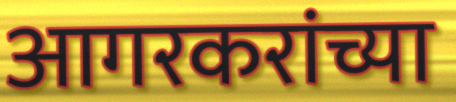
आगरकरांच्या